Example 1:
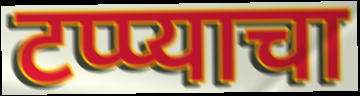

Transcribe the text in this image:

टप्प्याचा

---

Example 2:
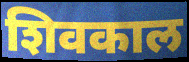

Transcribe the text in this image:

शिवकाल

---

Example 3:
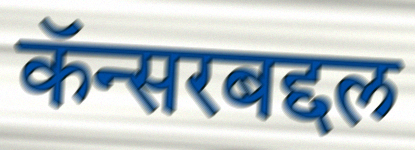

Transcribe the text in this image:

कॅन्सरबद्दल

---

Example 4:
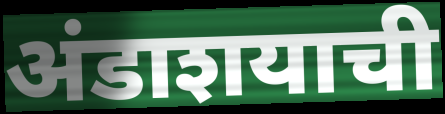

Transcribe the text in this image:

अंडाशयाची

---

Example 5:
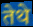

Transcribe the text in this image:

तेथे